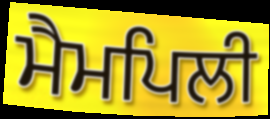
ਮੈਮਪਿਲੀ